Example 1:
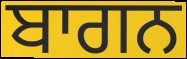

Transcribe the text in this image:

ਬਾਗਨ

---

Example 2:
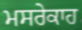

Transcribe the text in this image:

ਮਸਰੇਕਾਹ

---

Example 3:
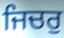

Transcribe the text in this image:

ਜਿਚਰੁ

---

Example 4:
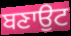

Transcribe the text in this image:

ਬਣਾਉਟ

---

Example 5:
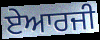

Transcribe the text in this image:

ਏਆਰਜੀ